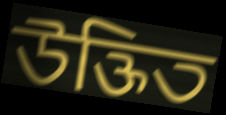
উক্তিত